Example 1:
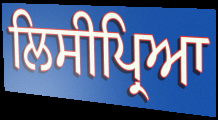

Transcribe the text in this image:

ਲਿਸੀਪ੍ਰਿਆ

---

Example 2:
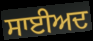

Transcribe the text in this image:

ਸਾਈਅਦ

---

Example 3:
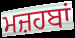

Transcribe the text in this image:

ਮਜ਼ਹਬਾਂ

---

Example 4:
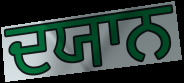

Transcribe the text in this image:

ਦਯਾਨ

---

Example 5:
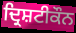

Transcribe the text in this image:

ਦ੍ਰਿਸ਼ਟੀਕੌਨ